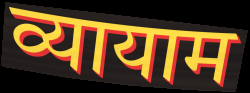
व्यायाम